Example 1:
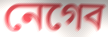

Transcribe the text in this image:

নেগেব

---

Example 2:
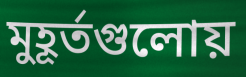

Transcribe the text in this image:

মুহূর্তগুলোয়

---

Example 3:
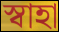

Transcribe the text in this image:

স্বাহা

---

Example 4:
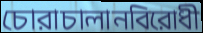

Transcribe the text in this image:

চোরাচালানবিরোধী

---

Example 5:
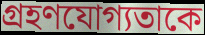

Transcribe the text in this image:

গ্রহণযোগ্যতাকে